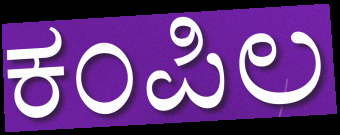
ಕಂಪಿಲ